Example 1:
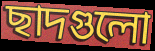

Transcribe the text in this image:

ছাদগুলো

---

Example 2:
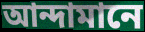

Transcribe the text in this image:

আন্দামানে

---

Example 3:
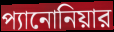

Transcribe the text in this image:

প্যানোনিয়ার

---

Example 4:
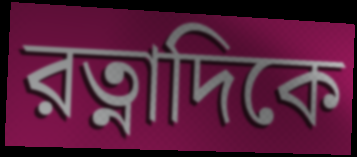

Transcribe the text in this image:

রত্নাদিকে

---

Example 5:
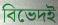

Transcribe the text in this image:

বিভেদই